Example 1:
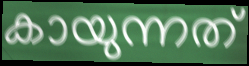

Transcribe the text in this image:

കായുന്നത്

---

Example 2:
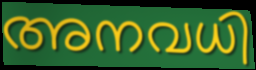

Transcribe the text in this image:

അനവധി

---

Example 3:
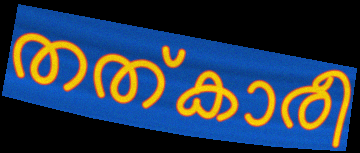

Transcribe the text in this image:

തത്കാരീ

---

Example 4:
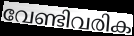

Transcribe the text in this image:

വേണ്ടിവരിക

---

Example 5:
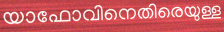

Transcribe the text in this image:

യാഫോവിനെതിരെയുള്ള